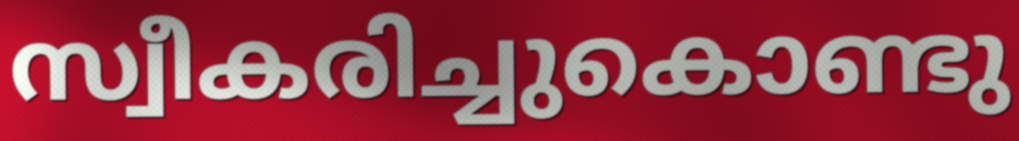
സ്വീകരിച്ചുകൊണ്ടു